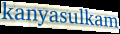
kanyasulkam